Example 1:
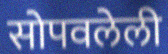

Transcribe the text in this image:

सोपवलेली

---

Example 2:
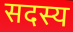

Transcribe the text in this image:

सदस्य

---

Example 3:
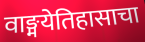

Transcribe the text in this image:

वाङ्मयेतिहासाचा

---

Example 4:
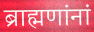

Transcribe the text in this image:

ब्राह्मणांनां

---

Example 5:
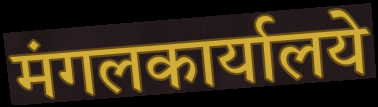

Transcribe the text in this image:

मंगलकार्यालये